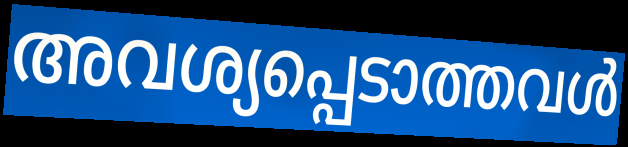
അവശ്യപ്പെടാത്തവൾ